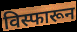
विस्फारून